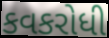
કવકરોધી